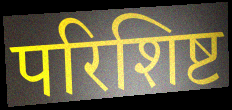
परिशिष्ट